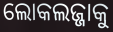
ଲୋକଲଜ୍ଜାକୁ